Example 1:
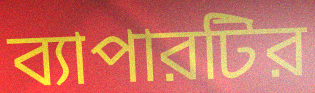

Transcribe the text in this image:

ব্যাপারটির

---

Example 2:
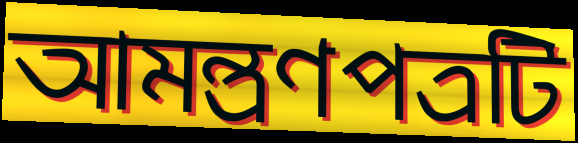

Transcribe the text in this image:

আমন্ত্রণপত্রটি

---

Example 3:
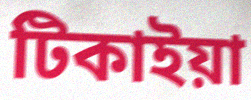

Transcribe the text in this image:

টিকাইয়া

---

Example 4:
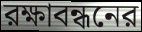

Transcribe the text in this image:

রক্ষাবন্ধনের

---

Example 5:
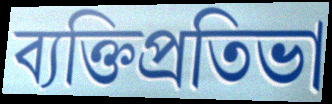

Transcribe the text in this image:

ব্যক্তিপ্রতিভা